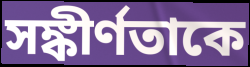
সঙ্কীর্ণতাকে